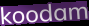
koodam